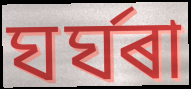
ঘৰ্ঘৰা